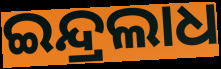
ଇନ୍ଦ୍ରଲାଧ